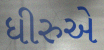
ધીરુએ